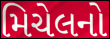
મિચેલનો